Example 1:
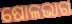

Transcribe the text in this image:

ଷୋଳଭାଗ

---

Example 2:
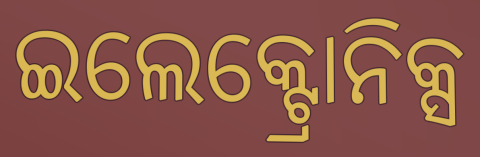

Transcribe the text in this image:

ଇଲେକ୍ଟ୍ରୋନିକ୍ସ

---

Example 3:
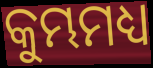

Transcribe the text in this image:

କୁମ୍ଭମଧ୍ୟ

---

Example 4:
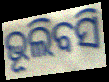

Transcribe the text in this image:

ଭୂଲିବସି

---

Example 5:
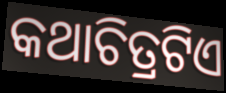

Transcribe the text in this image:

କଥାଚିତ୍ରଟିଏ